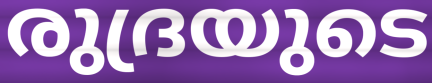
രുദ്രയുടെ